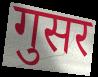
गुसर